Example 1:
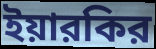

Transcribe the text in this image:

ইয়ারকির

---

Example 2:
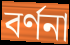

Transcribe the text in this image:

বর্ণনা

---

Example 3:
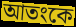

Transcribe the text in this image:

আতংকে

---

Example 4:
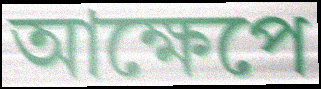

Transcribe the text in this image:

আক্ষেপে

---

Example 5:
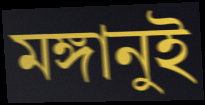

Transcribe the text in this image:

মঙ্গানুই